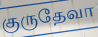
குருதேவா